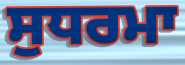
ਸੁਧਰਮਾ